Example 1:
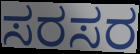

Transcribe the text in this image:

ಸರಸರ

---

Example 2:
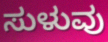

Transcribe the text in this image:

ಸುಳುವು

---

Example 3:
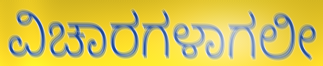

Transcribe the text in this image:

ವಿಚಾರಗಳಾಗಲೀ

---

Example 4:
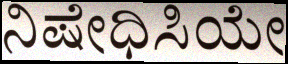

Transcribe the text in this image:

ನಿಷೇಧಿಸಿಯೇ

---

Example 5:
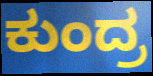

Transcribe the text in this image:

ಕುಂದ್ರ